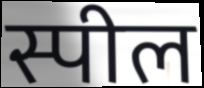
स्पील